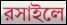
রসাইলে